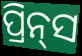
ପ୍ରିନ୍‍ସ